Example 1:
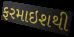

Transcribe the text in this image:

ફરમાઇશથી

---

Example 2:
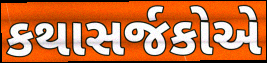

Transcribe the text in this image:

કથાસર્જકોએ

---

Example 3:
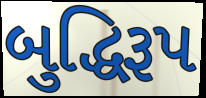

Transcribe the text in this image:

બુદ્ધિરૂપ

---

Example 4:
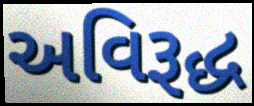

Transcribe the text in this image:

અવિરૂદ્ધ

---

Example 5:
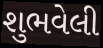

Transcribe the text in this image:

શુભવેલી